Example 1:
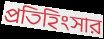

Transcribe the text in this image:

প্রতিহিংসার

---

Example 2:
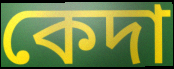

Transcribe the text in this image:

কেদা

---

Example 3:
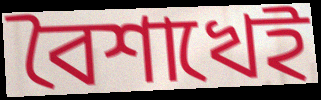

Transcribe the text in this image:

বৈশাখেই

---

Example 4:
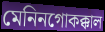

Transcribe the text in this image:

মেনিনগোকক্কাল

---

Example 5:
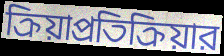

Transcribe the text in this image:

ক্রিয়াপ্রতিক্রিয়ার